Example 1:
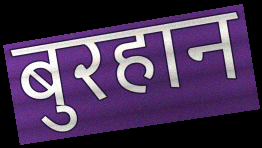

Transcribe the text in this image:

बुरहान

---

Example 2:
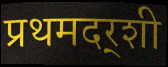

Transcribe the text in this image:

प्रथमदर्शी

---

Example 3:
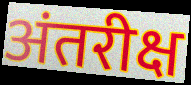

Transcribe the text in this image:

अंतरीक्ष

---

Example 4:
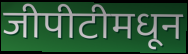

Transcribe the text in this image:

जीपीटीमधून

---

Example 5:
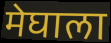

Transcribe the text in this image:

मेघाला